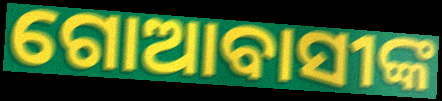
ଗୋଆବାସୀଙ୍କ